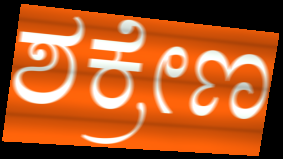
ಶಕ್ರೇಣ